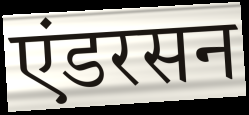
एंडरसन